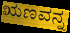
ಋಣವನ್ನ